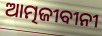
ଆତ୍ମଜୀବୀନୀ